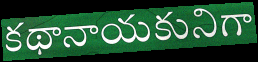
కథానాయకునిగా